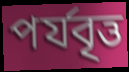
পর্যবৃত্ত